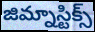
జిమ్నాస్టిక్స్